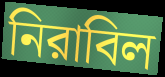
নিরাবিল